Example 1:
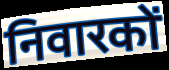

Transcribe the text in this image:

निवारकों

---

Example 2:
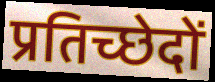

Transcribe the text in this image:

प्रतिच्छेदों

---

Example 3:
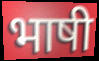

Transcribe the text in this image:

भाषी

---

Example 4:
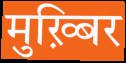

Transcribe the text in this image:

मुख़्बिर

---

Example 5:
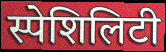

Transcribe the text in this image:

स्पेशिलिटी